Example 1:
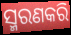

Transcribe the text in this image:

ସ୍ମରଣକରି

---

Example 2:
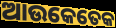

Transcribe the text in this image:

ଆଉକେତେକ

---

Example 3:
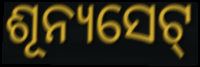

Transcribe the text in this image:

ଶୂନ୍ୟସେଟ୍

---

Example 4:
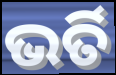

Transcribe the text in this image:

ଭର୍ତି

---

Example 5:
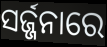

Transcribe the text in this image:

ସର୍ଜ୍ଜନାରେ